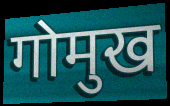
गोमुख